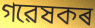
গৱেষকৰ